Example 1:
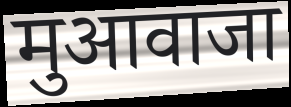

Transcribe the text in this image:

मुआवाजा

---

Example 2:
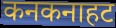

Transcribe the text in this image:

कनकनाहट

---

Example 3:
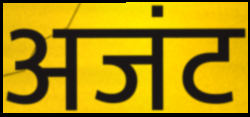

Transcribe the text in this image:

अजंट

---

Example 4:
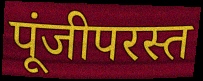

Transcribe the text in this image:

पूंजीपरस्त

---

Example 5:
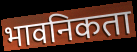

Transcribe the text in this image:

भावनिकता